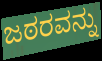
ಜಠರವನ್ನು